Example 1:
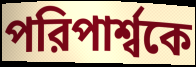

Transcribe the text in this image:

পরিপার্শ্বকে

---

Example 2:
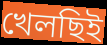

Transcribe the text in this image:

খেলছিই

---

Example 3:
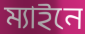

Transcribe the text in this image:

ম্যাইনে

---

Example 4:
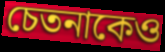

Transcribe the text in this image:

চেতনাকেও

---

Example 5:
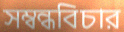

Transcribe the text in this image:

সম্বন্ধবিচার